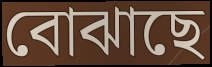
বোঝাছে